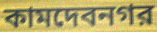
কামদেবনগর